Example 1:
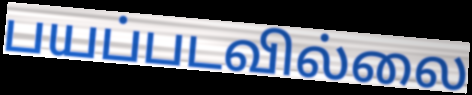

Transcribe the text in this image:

பயப்படவில்லை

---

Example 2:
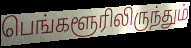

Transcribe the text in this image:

பெங்களூரிலிருந்தும்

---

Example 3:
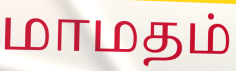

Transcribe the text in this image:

மாமதம்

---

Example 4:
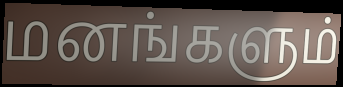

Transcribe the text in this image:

மனங்களும்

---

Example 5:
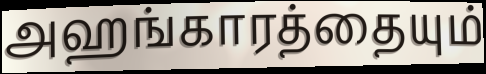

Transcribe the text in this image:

அஹங்காரத்தையும்